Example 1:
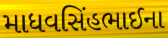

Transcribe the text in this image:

માધવસિંહભાઈના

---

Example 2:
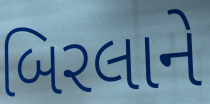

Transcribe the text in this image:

બિરલાને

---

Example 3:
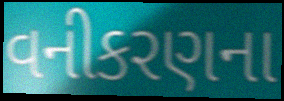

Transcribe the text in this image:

વનીકરણના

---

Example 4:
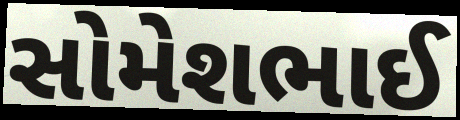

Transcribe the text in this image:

સોમેશભાઈ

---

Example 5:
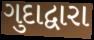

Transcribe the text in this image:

ગુદાદ્વારા